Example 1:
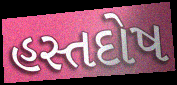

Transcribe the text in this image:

હસ્તદોષ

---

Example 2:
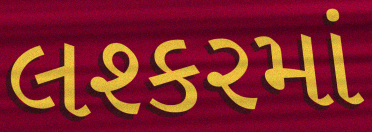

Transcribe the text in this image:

લશ્કરમાં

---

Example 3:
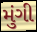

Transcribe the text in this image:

મુંગી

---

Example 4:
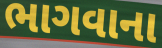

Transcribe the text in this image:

ભાગવાના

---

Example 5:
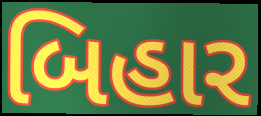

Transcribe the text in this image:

બિહાર